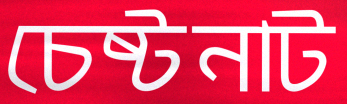
চেষ্টনাট